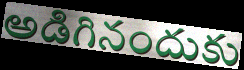
అడిగినందుకు